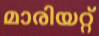
മാരിയറ്റ്